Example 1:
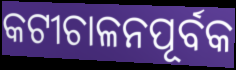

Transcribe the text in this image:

କଟୀଚାଳନପୂର୍ବକ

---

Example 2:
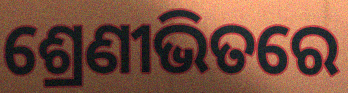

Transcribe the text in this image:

ଶ୍ରେଣୀଭିତରେ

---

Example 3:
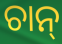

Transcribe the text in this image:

ଚାନ୍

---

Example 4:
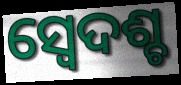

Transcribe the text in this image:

ସ୍ବେଦଶ୍ଚ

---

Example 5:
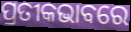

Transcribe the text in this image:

ପ୍ରତୀକଭାବରେ